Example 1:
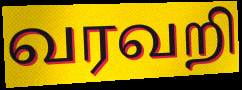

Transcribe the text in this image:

வரவறி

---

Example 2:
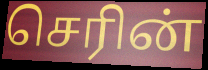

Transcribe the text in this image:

செரின்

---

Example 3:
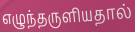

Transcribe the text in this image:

எழுந்தருளியதால்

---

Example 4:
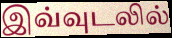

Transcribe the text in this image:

இவ்வுடலில்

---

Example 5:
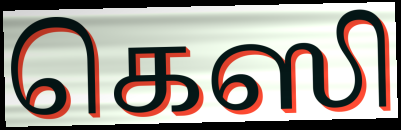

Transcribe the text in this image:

கெஸி